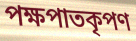
পক্ষপাতকৃপণ